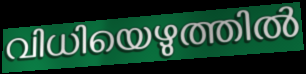
വിധിയെഴുത്തിൽ